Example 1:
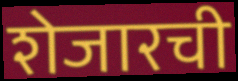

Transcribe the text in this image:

शेजारची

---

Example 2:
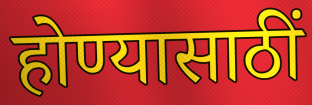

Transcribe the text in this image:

होण्यासाठीं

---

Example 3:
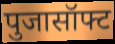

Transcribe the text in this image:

पुजासॉफ्ट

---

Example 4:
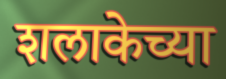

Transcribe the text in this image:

शलाकेच्या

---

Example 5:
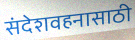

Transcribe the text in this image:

संदेशवहनासाठी